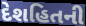
દેશહિતની